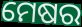
ମେଷର